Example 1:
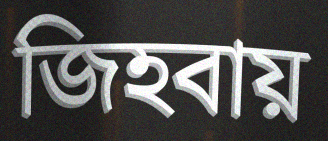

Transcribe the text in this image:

জিহবায়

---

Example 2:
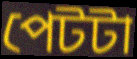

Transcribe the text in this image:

পেটটা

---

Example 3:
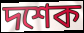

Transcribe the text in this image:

দশেক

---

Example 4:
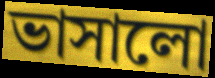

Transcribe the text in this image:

ভাসালো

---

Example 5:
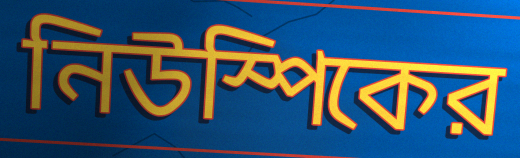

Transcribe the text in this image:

নিউস্পিকের